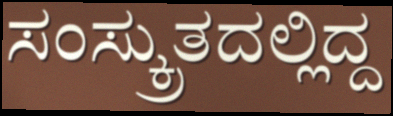
ಸಂಸ್ಕ್ರುತದಲ್ಲಿದ್ದ